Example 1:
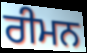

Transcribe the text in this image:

ਰੀਮਨ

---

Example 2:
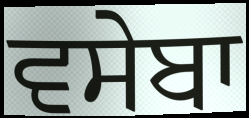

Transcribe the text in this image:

ਵਸੇਬਾ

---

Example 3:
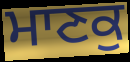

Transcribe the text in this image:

ਮਾਣਕੁ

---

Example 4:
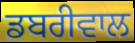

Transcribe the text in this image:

ਡਬਰੀਵਾਲ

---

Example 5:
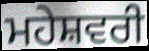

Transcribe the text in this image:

ਮਹੇਸ਼ਵਰੀ